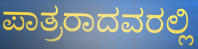
ಪಾತ್ರರಾದವರಲ್ಲಿ